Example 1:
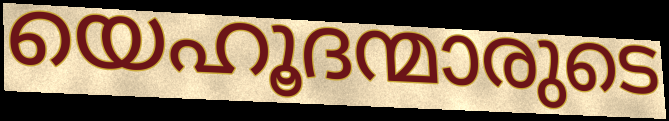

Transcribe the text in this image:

യെഹൂദന്മാരുടെ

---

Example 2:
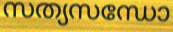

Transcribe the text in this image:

സത്യസന്ധോ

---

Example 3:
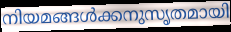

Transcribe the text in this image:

നിയമങ്ങൾക്കനുസൃതമായി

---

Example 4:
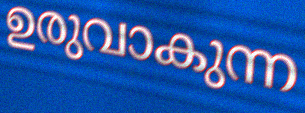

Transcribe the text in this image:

ഉരുവാകുന്ന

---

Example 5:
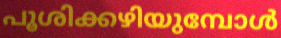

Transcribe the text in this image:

പൂശിക്കഴിയുമ്പോൾ